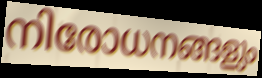
നിരോധനങ്ങളും